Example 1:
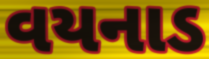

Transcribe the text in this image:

વયનાડ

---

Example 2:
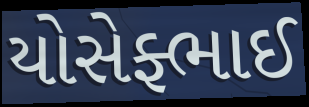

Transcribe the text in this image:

યોસેફ્ભાઈ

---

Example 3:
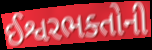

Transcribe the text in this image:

ઈશ્વરભક્તોની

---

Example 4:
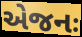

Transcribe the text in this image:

એજનઃ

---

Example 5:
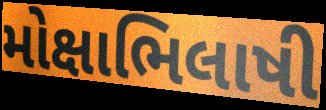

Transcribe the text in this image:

મોક્ષાભિલાષી